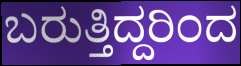
ಬರುತ್ತಿದ್ದರಿಂದ